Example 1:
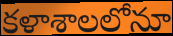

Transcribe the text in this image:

కళాశాలలోనూ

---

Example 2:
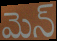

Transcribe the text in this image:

మెన్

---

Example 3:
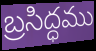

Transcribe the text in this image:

బ్రసిద్ధము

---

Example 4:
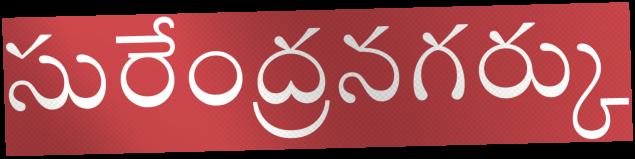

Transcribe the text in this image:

సురేంద్రనగర్కు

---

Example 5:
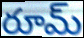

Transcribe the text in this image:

రూమ్